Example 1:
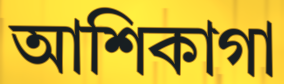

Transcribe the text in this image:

আশিকাগা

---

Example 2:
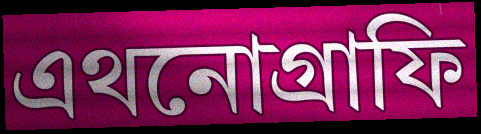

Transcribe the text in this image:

এথনোগ্রাফি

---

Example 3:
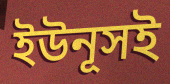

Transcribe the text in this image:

ইউনূসই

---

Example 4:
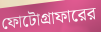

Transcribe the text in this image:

ফোটোগ্রাফারের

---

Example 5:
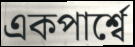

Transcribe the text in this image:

একপার্শ্বে